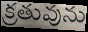
క్రతువును